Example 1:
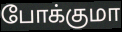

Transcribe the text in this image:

போக்குமா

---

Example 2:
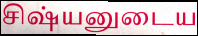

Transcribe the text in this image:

சிஷ்யனுடைய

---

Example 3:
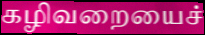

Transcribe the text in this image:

கழிவறையைச்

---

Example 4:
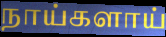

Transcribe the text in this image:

நாய்களாய்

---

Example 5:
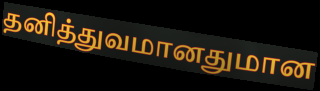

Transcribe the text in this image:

தனித்துவமானதுமான